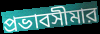
প্রভাবসীমার